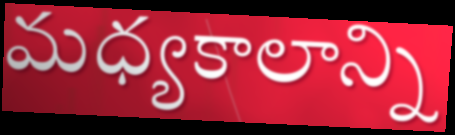
మధ్యకాలాన్ని